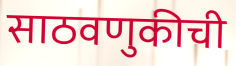
साठवणुकीची